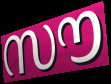
സൗ